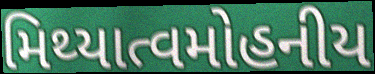
મિથ્યાત્વમોહનીય